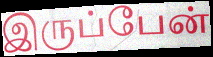
இருப்பேன்